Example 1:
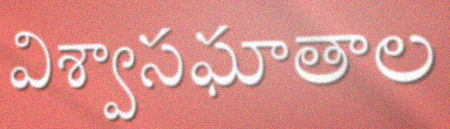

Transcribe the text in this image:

విశ్వాసఘాతాల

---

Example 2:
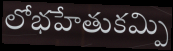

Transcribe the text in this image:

లోభహేతుకమ్పి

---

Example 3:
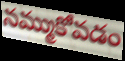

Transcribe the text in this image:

నమ్ముకోవడం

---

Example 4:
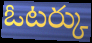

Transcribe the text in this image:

ఓటర్కు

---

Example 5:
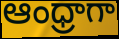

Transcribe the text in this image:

ఆంధ్రాగా